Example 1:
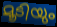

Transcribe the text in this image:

മൂടിയും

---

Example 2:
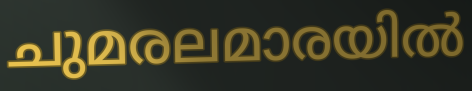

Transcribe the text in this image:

ചുമരലമാരയിൽ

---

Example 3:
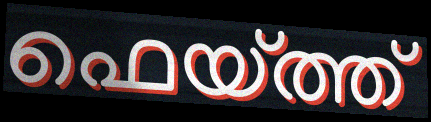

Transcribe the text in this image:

ഫെയ്ത്ത്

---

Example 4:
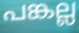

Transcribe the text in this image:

പങ്കല്ല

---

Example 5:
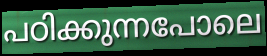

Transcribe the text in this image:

പഠിക്കുന്നപോലെ